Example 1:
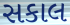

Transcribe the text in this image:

સકાલ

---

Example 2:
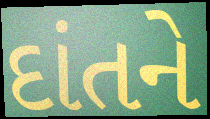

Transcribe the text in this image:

દાંતને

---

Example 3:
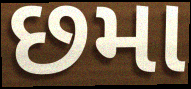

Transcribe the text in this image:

છમા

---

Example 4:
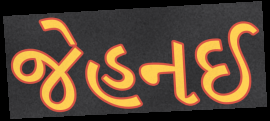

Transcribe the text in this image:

જેહનઈ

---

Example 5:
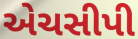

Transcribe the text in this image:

એચસીપી